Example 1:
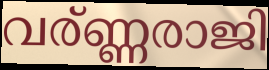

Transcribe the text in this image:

വര്ണ്ണരാജി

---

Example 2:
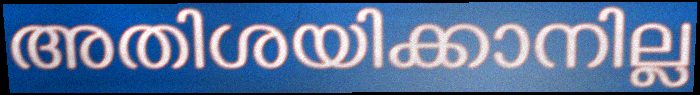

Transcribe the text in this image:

അതിശയിക്കാനില്ല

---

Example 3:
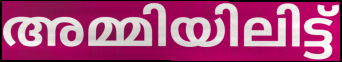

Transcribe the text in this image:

അമ്മിയിലിട്ട്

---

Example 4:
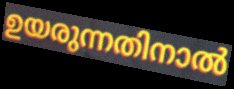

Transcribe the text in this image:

ഉയരുന്നതിനാൽ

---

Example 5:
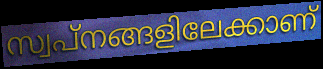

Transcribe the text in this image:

സ്വപ്നങ്ങളിലേക്കാണ്